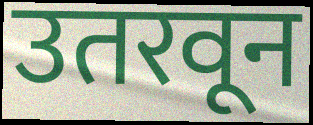
उतरवून